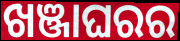
ଖଞ୍ଜାଘରର